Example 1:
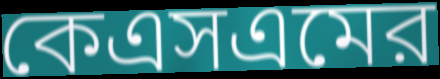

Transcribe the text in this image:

কেএসএমের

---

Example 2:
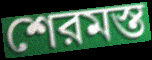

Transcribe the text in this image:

শেরমস্ত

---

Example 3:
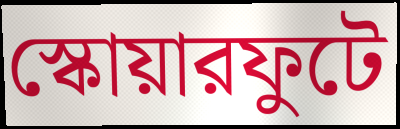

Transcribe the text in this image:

স্কোয়ারফুটে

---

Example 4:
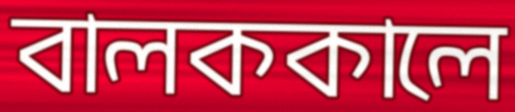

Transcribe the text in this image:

বালককালে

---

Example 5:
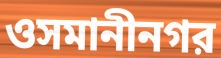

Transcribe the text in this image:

ওসমানীনগর